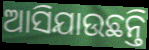
ଆସିଯାଉଛନ୍ତି